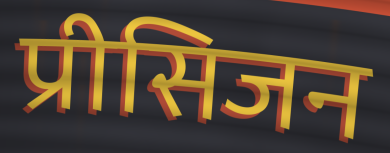
प्रीसिजन